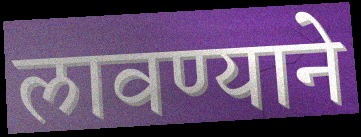
लावण्याने